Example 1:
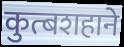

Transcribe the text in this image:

कुत्बशहाने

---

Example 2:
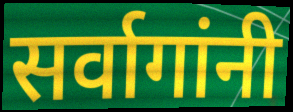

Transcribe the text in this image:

सर्वागांनी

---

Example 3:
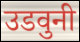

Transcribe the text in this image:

उडवुनी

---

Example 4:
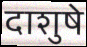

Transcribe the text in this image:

दाशुषे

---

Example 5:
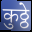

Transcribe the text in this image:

कुठ्ठे